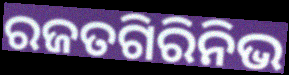
ରଜତଗିରିନିଭ